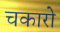
चकारो